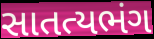
સાતત્યભંગ